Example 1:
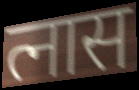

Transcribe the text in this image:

त्नास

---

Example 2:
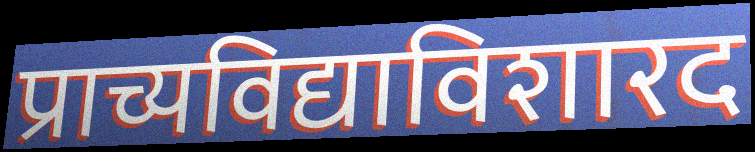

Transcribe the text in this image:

प्राच्यविद्याविशारद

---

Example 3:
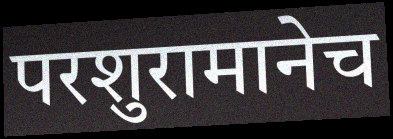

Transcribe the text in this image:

परशुरामानेच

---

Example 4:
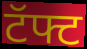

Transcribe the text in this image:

टॅफ्ट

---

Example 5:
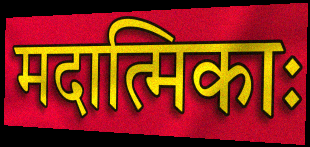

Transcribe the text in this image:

मदात्मिकाः